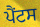
ਪੈਂਟਸ